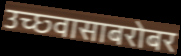
उच्छ्वासाबरोबर